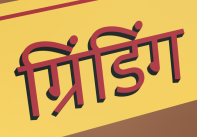
ग्रिंडिंग